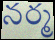
నర్మ